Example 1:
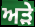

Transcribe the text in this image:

ਅੜੇ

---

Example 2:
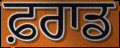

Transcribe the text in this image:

ਫ਼ਰਾਡ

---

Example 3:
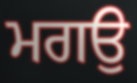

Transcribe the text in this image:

ਮਗਉ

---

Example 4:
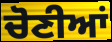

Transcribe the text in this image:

ਚੋਣੀਆਂ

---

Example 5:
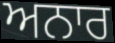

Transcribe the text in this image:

ਅਨਾਰ